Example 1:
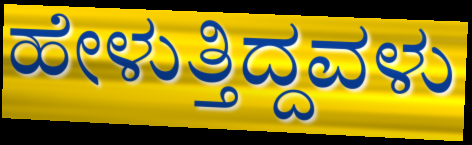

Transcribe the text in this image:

ಹೇಳುತ್ತಿದ್ದವಳು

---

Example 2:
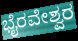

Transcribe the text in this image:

ಭೈರವೇಶ್ವರ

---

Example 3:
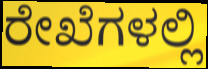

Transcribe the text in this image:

ರೇಖೆಗಳಲ್ಲಿ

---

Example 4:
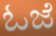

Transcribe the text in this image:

ಓಜೆ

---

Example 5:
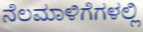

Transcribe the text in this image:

ನೆಲಮಾಳಿಗೆಗಳಲ್ಲಿ